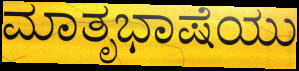
ಮಾತೃಭಾಷೆಯು